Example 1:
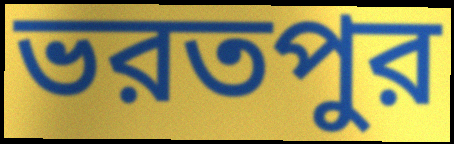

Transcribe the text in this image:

ভরতপুর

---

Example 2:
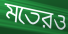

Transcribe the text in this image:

মতেরও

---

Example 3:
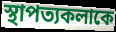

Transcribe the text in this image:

স্থাপত্যকলাকে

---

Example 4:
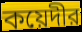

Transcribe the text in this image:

কয়েদীর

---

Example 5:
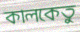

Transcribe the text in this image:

কালকেতু